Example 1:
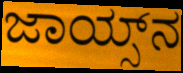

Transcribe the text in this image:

ಜಾಯ್ಸ್‌ನ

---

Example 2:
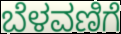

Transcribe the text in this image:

ಬೆಳವಣಿಗೆ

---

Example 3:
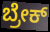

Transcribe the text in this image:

ಬ್ರೇಕ್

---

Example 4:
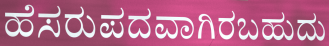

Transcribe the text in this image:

ಹೆಸರುಪದವಾಗಿರಬಹುದು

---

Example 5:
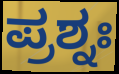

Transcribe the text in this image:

ಪ್ರಶ್ನಃ